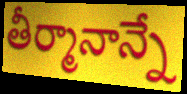
తీర్మానాన్నే